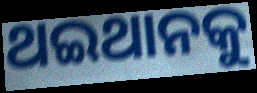
ଥଇଥାନକୁ